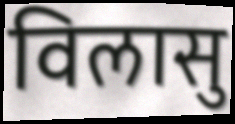
विलासु